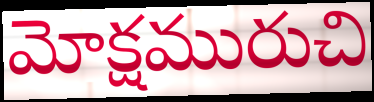
మోక్షమురుచి